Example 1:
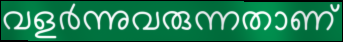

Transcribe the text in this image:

വളർന്നുവരുന്നതാണ്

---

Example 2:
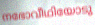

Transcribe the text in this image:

നഭോവീഥിയോടു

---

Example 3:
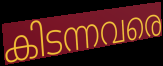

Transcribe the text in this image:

കിടന്നവരെ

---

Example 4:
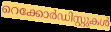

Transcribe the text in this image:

റെക്കോർഡിസ്റ്റുകൾ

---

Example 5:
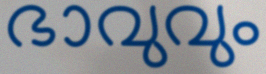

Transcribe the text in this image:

ഭാവുവും